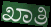
ಖಾತಿ